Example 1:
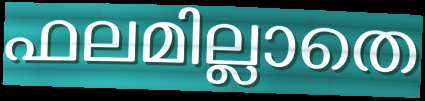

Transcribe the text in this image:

ഫലമില്ലാതെ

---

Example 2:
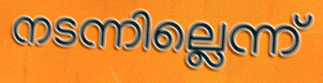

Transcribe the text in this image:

നടന്നില്ലെന്ന്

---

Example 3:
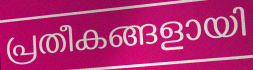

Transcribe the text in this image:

പ്രതീകങ്ങളായി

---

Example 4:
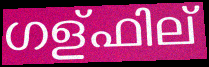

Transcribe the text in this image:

ഗള്ഫില്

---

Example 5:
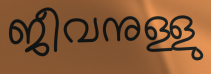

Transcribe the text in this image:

ജീവനുള്ളു